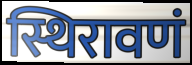
स्थिरावणं